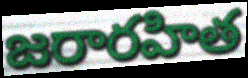
జరారహిత